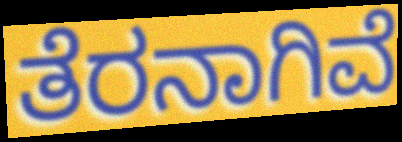
ತೆರನಾಗಿವೆ